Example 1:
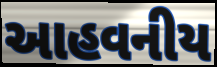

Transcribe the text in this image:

આહવનીય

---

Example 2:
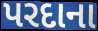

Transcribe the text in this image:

પરદાના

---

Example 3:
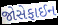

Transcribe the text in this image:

જોસેફાઈન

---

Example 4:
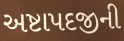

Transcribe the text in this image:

અષ્ટાપદજીની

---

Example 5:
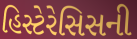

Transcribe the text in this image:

હિસ્ટેરેસિસની